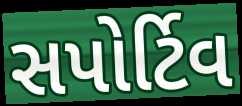
સપોર્ટિવ